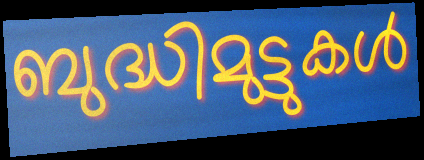
ബുദ്ധിമുട്ടുകൾ